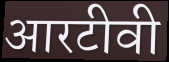
आरटीवी